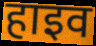
हाइव